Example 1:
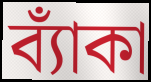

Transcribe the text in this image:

ব্যাঁকা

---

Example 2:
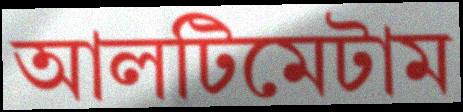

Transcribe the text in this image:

আলটিমেটাম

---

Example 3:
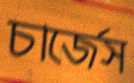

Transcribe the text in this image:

চার্জেস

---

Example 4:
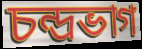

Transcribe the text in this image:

চন্দ্রভাগ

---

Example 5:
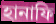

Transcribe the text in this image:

হানাফি